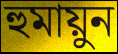
হুমায়ুন